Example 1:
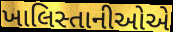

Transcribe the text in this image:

ખાલિસ્તાનીઓએ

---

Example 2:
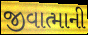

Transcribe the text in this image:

જીવાત્માની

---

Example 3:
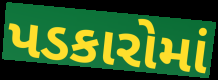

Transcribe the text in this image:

પડકારોમાં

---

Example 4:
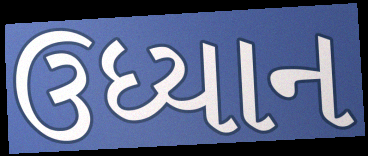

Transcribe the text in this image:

ઉધ્યાન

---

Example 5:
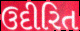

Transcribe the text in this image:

ઉદીરિત